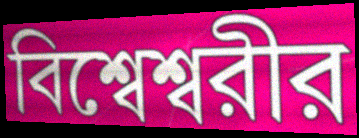
বিশ্বেশ্বরীর